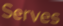
Serves